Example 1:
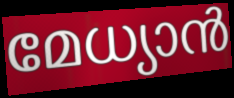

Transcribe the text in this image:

മേധ്യാൻ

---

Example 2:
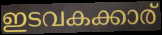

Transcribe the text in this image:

ഇടവകക്കാര്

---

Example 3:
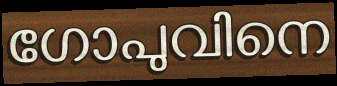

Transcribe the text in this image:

ഗോപുവിനെ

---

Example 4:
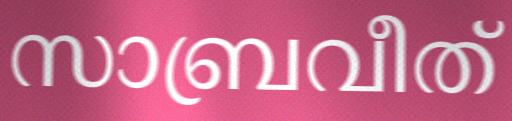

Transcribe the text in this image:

സാബ്രവീത്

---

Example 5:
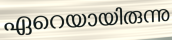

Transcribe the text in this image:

ഏറെയായിരുന്നു